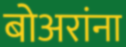
बोअरांना